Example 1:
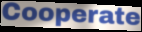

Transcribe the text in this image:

Cooperate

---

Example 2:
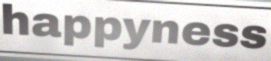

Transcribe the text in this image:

happyness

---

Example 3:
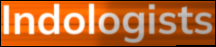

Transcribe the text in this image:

Indologists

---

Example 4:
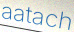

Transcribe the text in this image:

aatach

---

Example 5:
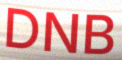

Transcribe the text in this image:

DNB